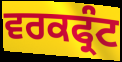
ਵਰਕਫ੍ਰੰਟ